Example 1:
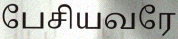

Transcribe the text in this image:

பேசியவரே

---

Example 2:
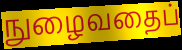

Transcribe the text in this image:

நுழைவதைப்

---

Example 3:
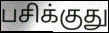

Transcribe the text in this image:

பசிக்குது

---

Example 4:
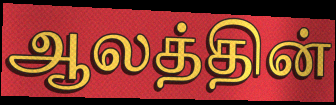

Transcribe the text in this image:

ஆலத்தின்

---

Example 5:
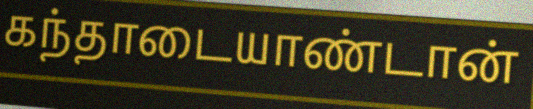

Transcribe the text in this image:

கந்தாடையாண்டான்